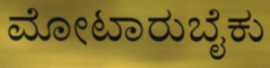
ಮೋಟಾರುಬೈಕು